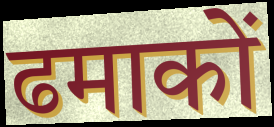
ढमाकों